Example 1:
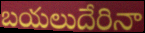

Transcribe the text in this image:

బయలుదేరినా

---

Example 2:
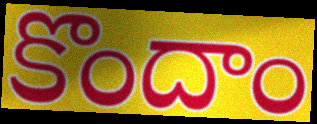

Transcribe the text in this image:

కొందాం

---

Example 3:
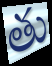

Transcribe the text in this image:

తు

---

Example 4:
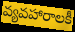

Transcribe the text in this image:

వ్యవహారాలకీ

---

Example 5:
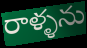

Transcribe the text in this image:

రాళ్ళను